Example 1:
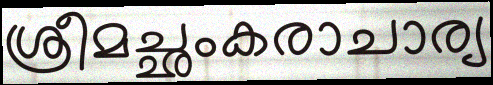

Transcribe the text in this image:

ശ്രീമച്ഛംകരാചാര്യ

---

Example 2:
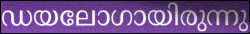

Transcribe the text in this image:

ഡയലോഗായിരുന്നു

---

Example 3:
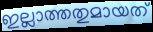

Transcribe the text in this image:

ഇല്ലാത്തതുമായത്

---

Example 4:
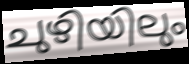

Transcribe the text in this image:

ചുഴിയിലും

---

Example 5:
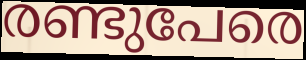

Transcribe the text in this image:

രണ്ടുപേരെ